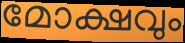
മോക്ഷവും